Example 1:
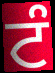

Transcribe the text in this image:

ਟੰ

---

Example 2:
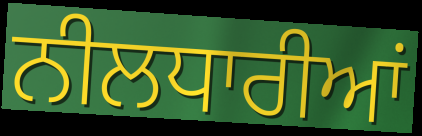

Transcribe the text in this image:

ਨੀਲਧਾਰੀਆਂ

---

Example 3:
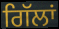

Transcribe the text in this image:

ਗਿੱਲਾਂ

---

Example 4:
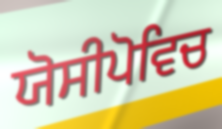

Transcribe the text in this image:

ਯੋਸੀਪੋਵਿਚ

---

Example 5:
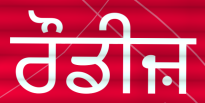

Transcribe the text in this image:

ਰੌਡੀਜ਼